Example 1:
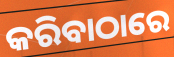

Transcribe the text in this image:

କରିବାଠାରେ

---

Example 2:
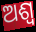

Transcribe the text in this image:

ଅଶ୍ବ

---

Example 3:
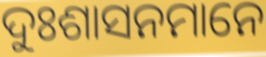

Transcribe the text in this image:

ଦୁଃଶାସନମାନେ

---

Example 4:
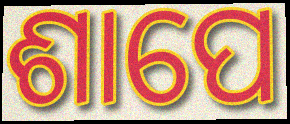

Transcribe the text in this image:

ଶାପେ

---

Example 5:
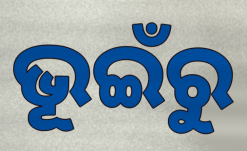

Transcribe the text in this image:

ଭୂଇଁରୁ